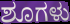
ಶೂಗಳು